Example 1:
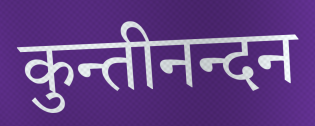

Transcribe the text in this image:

कुन्तीनन्दन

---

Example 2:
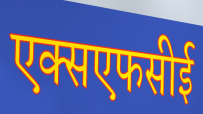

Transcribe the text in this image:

एक्सएफसीई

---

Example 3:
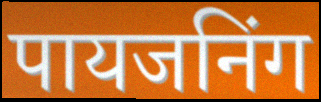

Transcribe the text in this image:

पायजनिंग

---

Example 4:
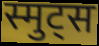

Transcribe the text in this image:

स्मुट्स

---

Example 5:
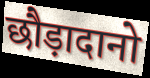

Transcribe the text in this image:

छौड़ादानो